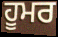
ਹੂਮਰ